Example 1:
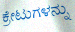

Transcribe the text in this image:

ಕ್ರೇಟುಗಳನ್ನು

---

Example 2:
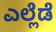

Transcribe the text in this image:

ಎಲ್ಲೆಡೆ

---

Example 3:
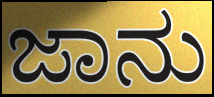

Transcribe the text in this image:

ಜಾನು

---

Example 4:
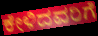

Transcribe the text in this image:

ಕೇಳಿದವರಿಗೆ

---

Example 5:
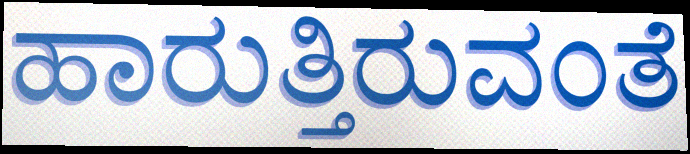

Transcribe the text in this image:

ಹಾರುತ್ತಿರುವಂತೆ